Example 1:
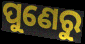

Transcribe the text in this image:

ପୁଣେରୁ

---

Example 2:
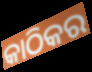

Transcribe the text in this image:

କାଠିକର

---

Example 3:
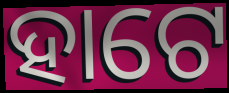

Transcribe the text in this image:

ହାଟେ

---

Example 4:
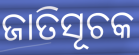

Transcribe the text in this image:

ଜାତିସୂଚକ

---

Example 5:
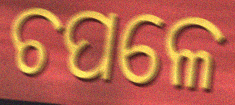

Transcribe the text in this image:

ଚପଳେ